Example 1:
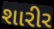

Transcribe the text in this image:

શારીર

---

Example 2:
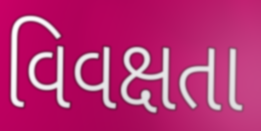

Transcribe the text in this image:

વિવક્ષતા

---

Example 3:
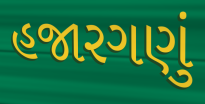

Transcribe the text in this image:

હજારગણું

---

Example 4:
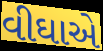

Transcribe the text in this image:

વીઘાએ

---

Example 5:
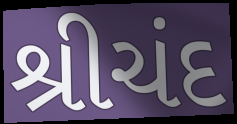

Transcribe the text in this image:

શ્રીચંદ